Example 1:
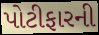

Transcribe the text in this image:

પોટીફારની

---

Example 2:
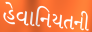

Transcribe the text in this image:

હેવાનિયતની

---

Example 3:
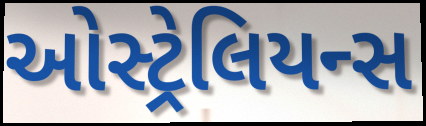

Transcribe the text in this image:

ઓસ્ટ્રેલિયન્સ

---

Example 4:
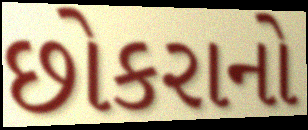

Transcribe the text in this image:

છોકરાનો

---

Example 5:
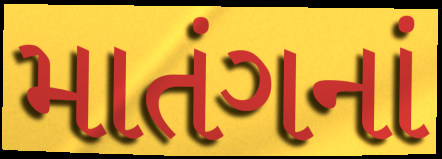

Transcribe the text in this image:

માતંગનાં